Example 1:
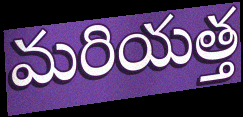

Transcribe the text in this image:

మరియత్త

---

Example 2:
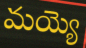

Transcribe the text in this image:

మయ్యె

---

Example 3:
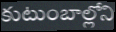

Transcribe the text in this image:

కుటుంబాల్లోని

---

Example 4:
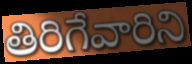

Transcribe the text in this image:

తిరిగేవారిని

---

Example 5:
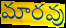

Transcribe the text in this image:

మారవు